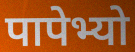
पापेभ्यो